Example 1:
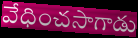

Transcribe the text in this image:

వేధించసాగాడు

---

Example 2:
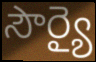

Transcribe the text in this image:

సౌర్యై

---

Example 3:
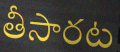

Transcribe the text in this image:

తీసారట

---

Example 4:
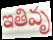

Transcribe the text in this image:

ఇతివృ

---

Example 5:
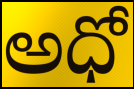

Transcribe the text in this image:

అధో